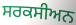
ਸਰਕਸੀਅਨ